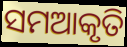
ସମଆକୃତି